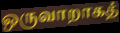
ஒருவாறாகத்